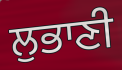
ਲੁਭਾਣੀ